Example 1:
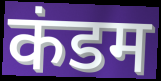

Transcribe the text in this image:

कंडम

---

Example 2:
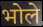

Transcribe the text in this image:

भोले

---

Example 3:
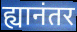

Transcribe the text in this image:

ह्यानंतर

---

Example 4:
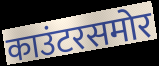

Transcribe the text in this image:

काउंटरसमोर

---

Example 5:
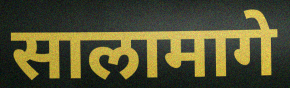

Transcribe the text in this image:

सालामागे